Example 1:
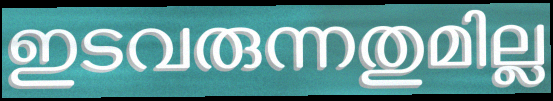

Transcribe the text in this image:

ഇടവരുന്നതുമില്ല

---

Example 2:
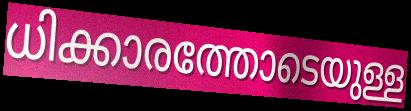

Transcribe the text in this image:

ധിക്കാരത്തോടെയുള്ള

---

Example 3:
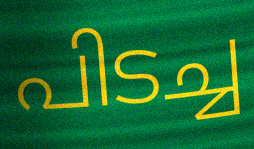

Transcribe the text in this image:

പിടച്ച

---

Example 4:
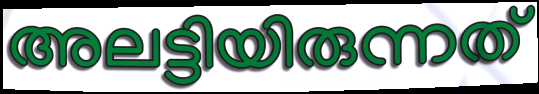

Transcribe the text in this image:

അലട്ടിയിരുന്നത്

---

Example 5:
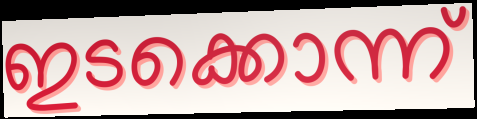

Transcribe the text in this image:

ഇടക്കൊന്ന്